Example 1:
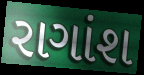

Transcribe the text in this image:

રાગાંશ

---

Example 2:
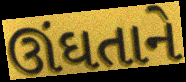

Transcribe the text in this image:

ઊંઘતાને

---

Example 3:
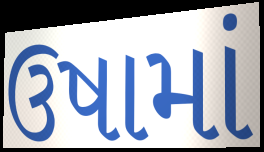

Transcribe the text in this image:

ઉષામાં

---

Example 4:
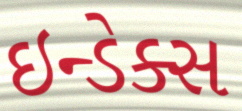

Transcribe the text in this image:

ઇન્ડેક્સ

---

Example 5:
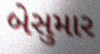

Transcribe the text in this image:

બેસુમાર